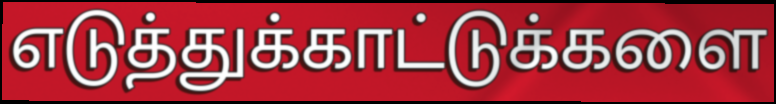
எடுத்துக்காட்டுக்களை